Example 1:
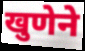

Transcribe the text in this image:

खुणेने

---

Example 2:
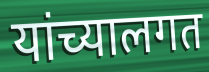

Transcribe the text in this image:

यांच्यालगत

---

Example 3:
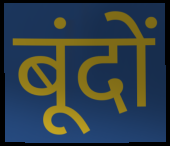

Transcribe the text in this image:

बूंदों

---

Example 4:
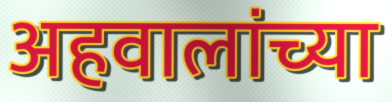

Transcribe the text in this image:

अहवालांच्या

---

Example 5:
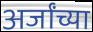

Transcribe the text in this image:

अर्जांच्या